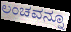
ಲಂಚವನ್ನೂ